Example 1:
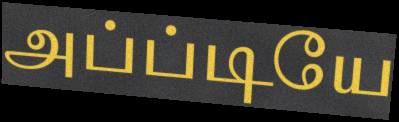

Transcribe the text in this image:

அப்ப்டியே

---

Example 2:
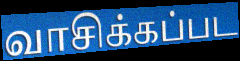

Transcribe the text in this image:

வாசிக்கப்பட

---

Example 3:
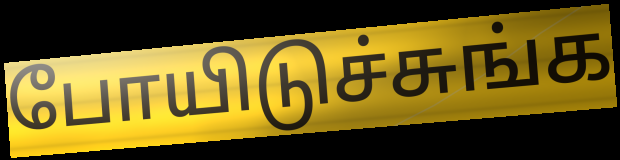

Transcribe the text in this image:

போயிடுச்சுங்க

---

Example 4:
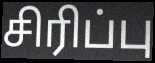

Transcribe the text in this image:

சிரிப்பு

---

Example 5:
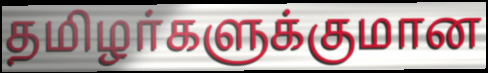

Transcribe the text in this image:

தமிழர்களுக்குமான